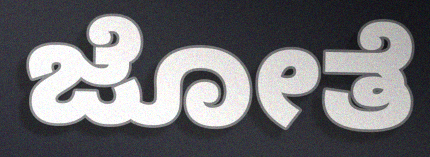
ಜೋತೆ